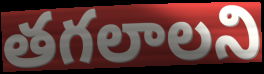
తగలాలని